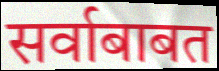
सर्वाबाबत